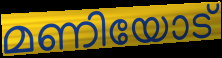
മണിയോട്